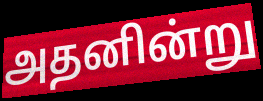
அதனின்று